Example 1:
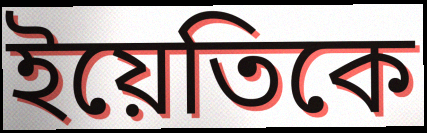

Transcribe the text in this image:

ইয়েতিকে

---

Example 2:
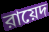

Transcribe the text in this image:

রায়েদ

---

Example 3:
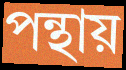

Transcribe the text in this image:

পন্থায়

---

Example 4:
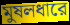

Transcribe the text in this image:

মুষলধারে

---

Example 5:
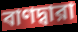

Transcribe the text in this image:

বাণদ্বারা